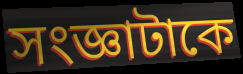
সংজ্ঞাটাকে